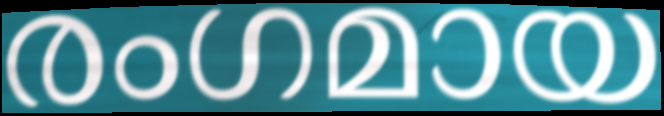
രംഗമായ